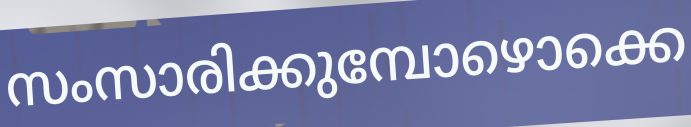
സംസാരിക്കുമ്പോഴൊക്കെ